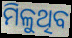
ମିଳୁଥିବ